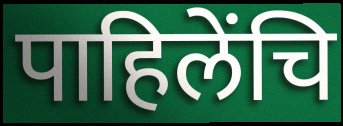
पाहिलेंचि